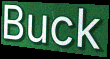
Buck